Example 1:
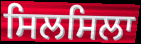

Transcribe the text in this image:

ਸਿਲਸਿਲਾ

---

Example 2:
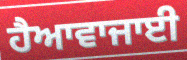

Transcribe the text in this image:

ਹੈਆਵਾਜਾਈ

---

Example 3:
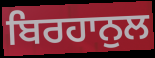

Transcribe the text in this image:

ਬਿਰਹਾਨੁਲ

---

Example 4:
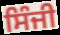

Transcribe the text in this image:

ਸਿੰਜੀ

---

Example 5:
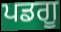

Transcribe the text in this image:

ਪਡਗੂ